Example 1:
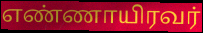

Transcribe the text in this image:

எண்ணாயிரவர்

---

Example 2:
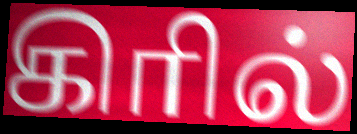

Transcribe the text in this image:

கிரில்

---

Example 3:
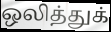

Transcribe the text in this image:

ஒலித்துக்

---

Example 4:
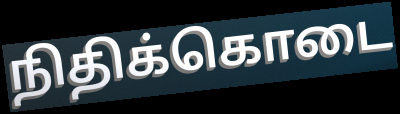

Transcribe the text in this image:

நிதிக்கொடை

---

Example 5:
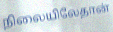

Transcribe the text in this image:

நிலையிலேதான்